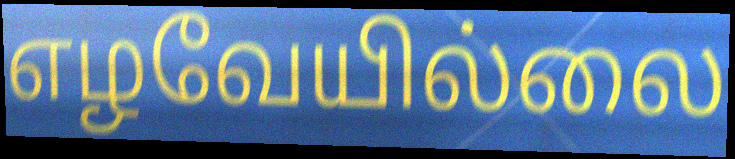
எழவேயில்லை